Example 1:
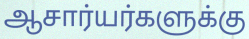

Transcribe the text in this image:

ஆசார்யர்களுக்கு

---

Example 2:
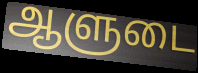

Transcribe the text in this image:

ஆளுடை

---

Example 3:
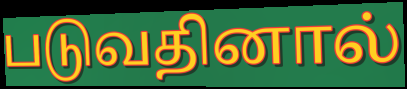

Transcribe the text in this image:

படுவதினால்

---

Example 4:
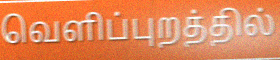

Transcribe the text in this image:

வெளிப்புறத்தில்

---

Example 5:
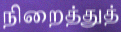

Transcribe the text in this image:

நிறைத்துத்